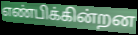
எண்பிக்கின்றன